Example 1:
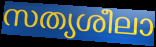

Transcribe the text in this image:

സത്യശീലാ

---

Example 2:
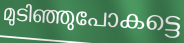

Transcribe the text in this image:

മുടിഞ്ഞുപോകട്ടെ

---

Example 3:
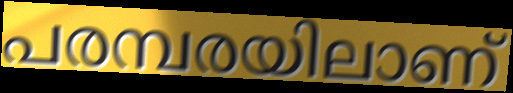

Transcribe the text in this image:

പരമ്പരയിലാണ്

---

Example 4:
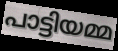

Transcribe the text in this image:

പാട്ടിയമ്മ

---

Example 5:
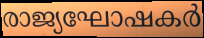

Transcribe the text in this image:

രാജ്യഘോഷകർ